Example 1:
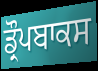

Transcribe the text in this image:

ਡ੍ਰੌਪਬਾਕਸ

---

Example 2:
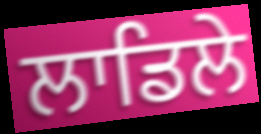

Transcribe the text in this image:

ਲਾਡਿਲੇ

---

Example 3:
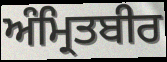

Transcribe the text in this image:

ਅੰਮ੍ਰਿਤਬੀਰ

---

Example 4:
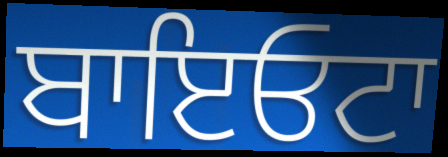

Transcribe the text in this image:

ਬਾਇਓਟਾ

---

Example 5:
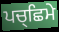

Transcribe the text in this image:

ਪਚ੍ਛਿਮੇ